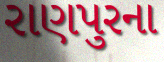
રાણપુરના